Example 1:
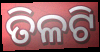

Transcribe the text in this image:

ତିଳଟି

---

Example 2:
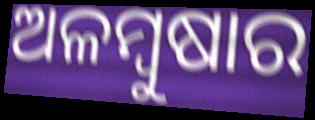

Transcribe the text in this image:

ଅଳମ୍ବୁଷାର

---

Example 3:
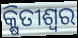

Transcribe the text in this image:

କ୍ଷିତୀଶ୍ୱର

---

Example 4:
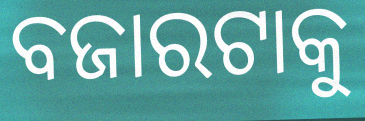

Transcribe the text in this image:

ବଜାରଟାକୁ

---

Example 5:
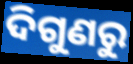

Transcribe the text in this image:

ଦିଗୁଣରୁ